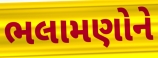
ભલામણોને